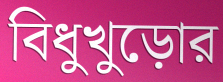
বিধুখুড়োর